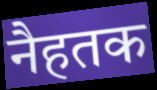
नैहतक